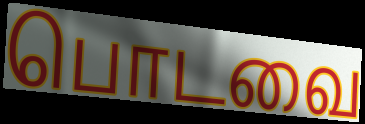
பொடவை